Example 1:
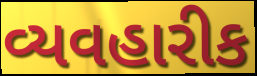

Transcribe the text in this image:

વ્યવહારીક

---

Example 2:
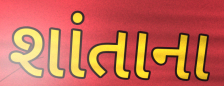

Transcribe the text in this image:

શાંતાના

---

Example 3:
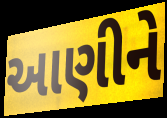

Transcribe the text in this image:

આણીને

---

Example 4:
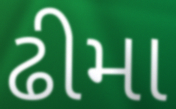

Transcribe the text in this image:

ઢીમા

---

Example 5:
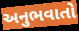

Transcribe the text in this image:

અનુભવાતો